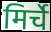
मिर्चे